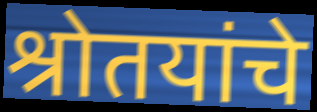
श्रोतयांचे